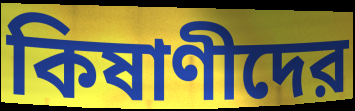
কিষাণীদের